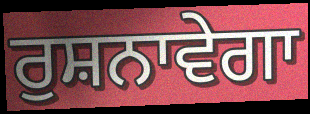
ਰੁਸ਼ਨਾਵੇਗਾ